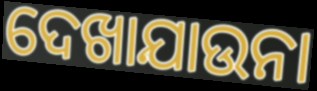
ଦେଖାଯାଉନା